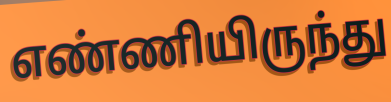
எண்ணியிருந்து